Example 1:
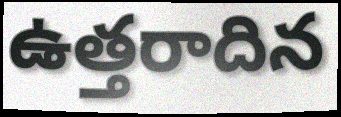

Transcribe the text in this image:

ఉత్తరాదిన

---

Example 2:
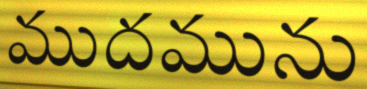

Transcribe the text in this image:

ముదమును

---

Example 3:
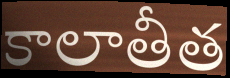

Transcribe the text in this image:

కాలాతీత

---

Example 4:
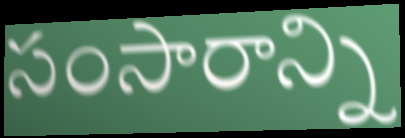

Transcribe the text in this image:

సంసారాన్ని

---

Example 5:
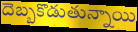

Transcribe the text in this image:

దెబ్బకొడుతున్నాయి